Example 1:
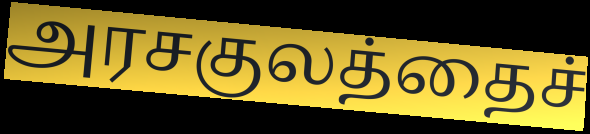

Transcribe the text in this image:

அரசகுலத்தைச்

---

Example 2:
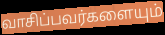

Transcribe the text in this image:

வாசிப்பவர்களையும்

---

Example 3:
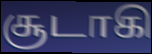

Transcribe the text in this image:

சூடாகி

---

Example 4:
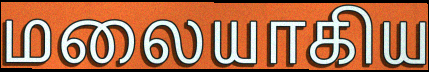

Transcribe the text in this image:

மலையாகிய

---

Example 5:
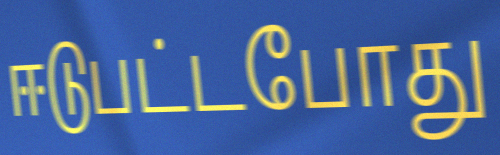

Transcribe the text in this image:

ஈடுபட்டபோது